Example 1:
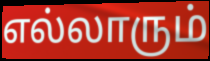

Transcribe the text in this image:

எல்லாரும்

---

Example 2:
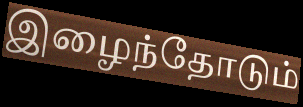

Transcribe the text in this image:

இழைந்தோடும்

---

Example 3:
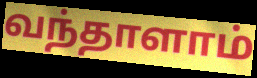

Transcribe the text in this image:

வந்தாளாம்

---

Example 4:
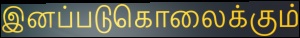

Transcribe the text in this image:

இனப்படுகொலைக்கும்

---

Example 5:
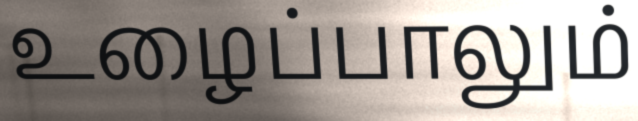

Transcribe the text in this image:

உழைப்பாலும்